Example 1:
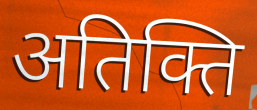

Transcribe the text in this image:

अतिक्ति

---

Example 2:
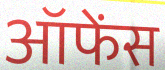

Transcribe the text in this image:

ऑफेंस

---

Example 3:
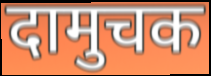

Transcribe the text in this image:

दामुचक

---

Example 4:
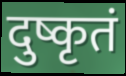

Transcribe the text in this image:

दुष्कृतं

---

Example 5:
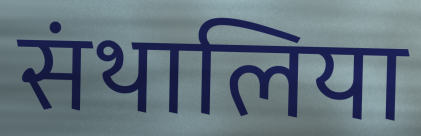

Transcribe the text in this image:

संथालिया